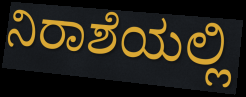
ನಿರಾಶೆಯಲ್ಲಿ